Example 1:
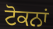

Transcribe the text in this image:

ਟੋਕਨਾਂ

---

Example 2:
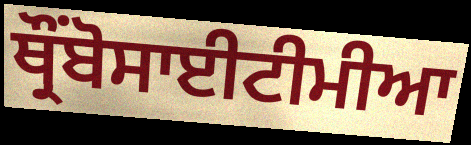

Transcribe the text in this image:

ਥ੍ਰੌਂਬੋਸਾਈਟੀਮੀਆ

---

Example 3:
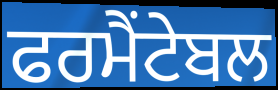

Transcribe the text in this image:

ਫਰਮੈਂਟੇਬਲ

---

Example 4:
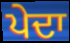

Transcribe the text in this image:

ਪੇਦਾ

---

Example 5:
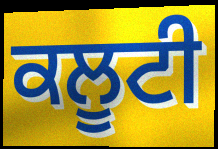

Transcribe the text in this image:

ਕਲੂਟੀ